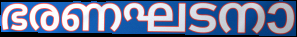
ഭരണഘടനാ